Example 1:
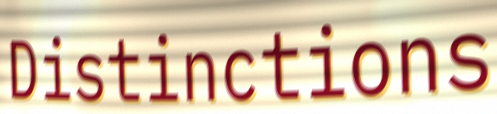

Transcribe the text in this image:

Distinctions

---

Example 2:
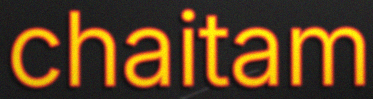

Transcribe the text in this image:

chaitam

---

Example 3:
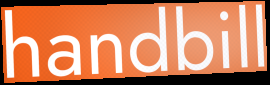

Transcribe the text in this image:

handbill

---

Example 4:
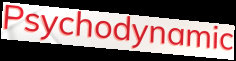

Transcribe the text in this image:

Psychodynamic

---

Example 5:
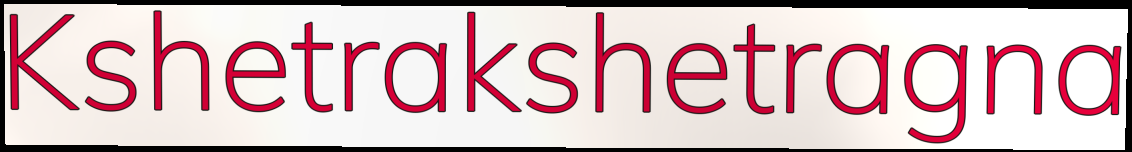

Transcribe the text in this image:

Kshetrakshetragna